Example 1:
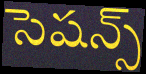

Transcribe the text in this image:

సెషన్స్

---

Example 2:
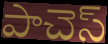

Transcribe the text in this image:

పాచెస్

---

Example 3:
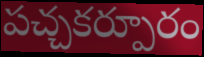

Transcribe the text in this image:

పచ్చకర్పూరం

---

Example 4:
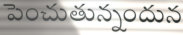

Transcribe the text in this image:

పెంచుతున్నందున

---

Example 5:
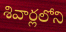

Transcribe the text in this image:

శివార్లలోని